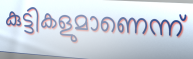
കുട്ടികളുമാണെന്ന്